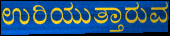
ಉರಿಯುತ್ತಾರುವ